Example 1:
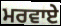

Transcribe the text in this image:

ਮਰਵਾਏ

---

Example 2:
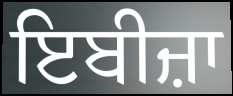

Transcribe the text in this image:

ਇਬੀਜ਼ਾ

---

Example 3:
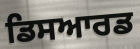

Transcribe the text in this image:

ਡਿਸਆਰਡ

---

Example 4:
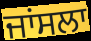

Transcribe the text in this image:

ਜਾਂਸਲਾ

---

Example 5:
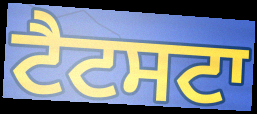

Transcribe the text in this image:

ਟੈਟਸਟਾ